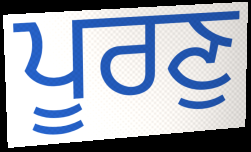
ਪੂਰਣੁ